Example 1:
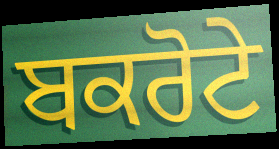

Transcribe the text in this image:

ਬਕਰੋਟੇ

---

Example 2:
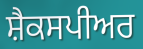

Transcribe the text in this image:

ਸ਼ੈਕਸਪੀਅਰ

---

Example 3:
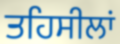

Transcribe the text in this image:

ਤਹਿਸੀਲਾਂ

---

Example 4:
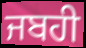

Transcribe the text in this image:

ਜਬਹੀ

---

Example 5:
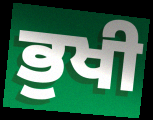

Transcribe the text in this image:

ਭੁਖੀ